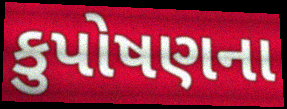
કુપોષણના